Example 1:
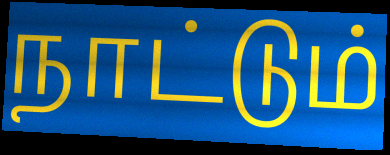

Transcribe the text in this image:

நாட்டும்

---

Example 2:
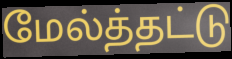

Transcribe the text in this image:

மேல்த்தட்டு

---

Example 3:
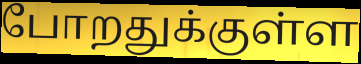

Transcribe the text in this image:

போறதுக்குள்ள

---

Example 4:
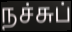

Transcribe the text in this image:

நச்சுப்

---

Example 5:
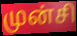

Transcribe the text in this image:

முன்சி